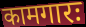
कामगारः